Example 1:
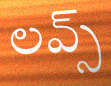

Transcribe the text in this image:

లవ్స్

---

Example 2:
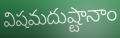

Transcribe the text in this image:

విషమదుష్టానాం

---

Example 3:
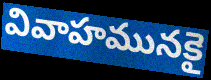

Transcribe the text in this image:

వివాహమునకై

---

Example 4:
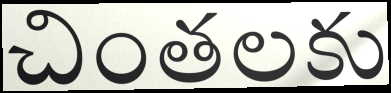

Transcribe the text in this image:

చింతలకు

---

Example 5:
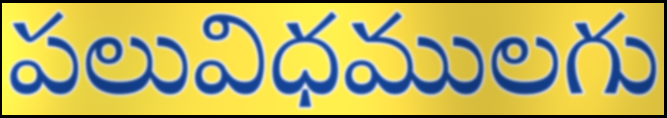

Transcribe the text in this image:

పలువిధములగు